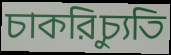
চাকরিচ্যুতি